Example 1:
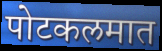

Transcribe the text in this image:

पोटकलमात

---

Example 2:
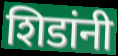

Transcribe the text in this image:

शिडांनी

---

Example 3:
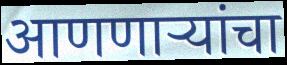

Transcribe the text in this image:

आणणाऱ्यांचा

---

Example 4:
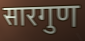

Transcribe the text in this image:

सारगुण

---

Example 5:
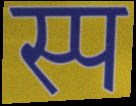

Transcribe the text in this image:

स्प